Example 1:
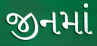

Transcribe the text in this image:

જીનમાં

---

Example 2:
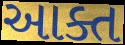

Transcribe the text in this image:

આક્ત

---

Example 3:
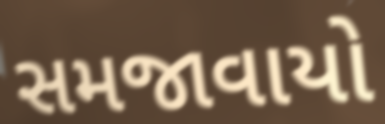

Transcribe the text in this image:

સમજાવાયો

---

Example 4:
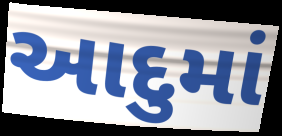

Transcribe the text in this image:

આદુમાં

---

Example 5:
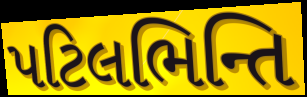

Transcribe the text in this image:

પટિલભિન્તિ